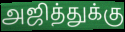
அஜித்துக்கு